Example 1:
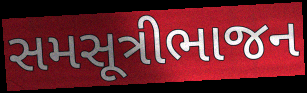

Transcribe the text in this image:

સમસૂત્રીભાજન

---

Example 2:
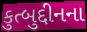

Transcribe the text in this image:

કુત્બુદ્દીનના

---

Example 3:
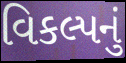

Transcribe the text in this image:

વિકલ્પનું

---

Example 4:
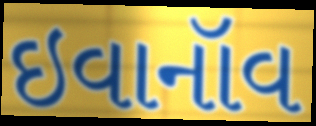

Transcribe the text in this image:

ઇવાનૉવ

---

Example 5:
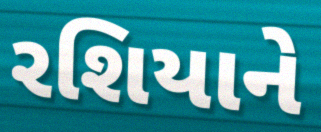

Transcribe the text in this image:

રશિયાને